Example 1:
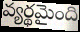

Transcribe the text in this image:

వ్యర్థమైంది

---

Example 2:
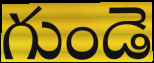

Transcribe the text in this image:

గుండె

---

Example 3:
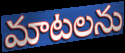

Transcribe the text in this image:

మాటలను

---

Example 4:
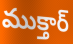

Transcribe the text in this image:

ముక్తార్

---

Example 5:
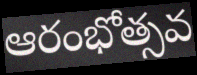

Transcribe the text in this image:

ఆరంభోత్సవ